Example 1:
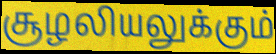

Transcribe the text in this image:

சூழலியலுக்கும்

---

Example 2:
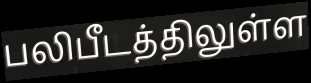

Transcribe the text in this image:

பலிபீடத்திலுள்ள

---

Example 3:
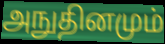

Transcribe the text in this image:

அநுதினமும்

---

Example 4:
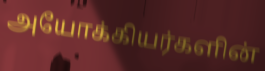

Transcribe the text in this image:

அயோக்கியர்களின்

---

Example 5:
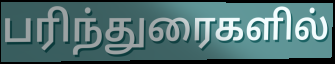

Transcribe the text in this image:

பரிந்துரைகளில்